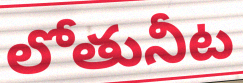
లోతునీట